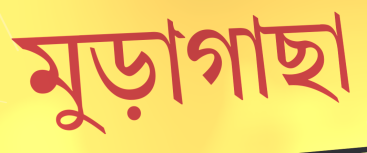
মুড়াগাছা